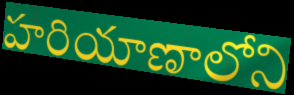
హరియాణాలోని